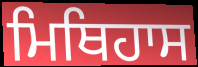
ਮਿਥਿਹਾਸ